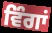
ਵਿੰਗਾਂ